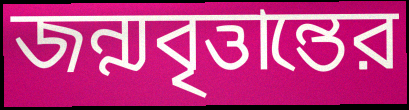
জন্মবৃত্তান্তের